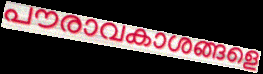
പൗരാവകാശങ്ങളെ